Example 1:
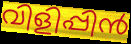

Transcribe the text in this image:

വിളിപ്പിൻ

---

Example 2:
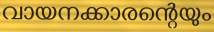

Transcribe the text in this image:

വായനക്കാരന്റെയും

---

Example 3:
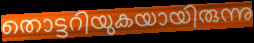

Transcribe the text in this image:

തൊട്ടറിയുകയായിരുന്നു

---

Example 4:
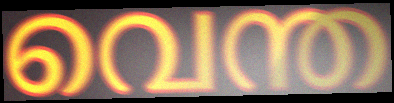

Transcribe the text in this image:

വെന്ത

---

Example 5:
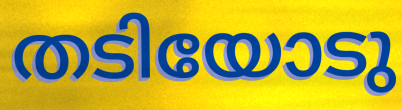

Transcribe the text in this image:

തടിയോടു